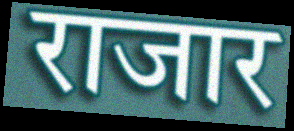
राजार